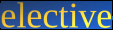
elective